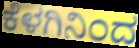
ಕೆಳಗಿನಿಂದ